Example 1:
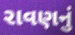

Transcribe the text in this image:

રાવણનું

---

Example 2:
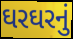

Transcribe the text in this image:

ઘરઘરનું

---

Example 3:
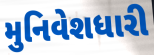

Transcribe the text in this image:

મુનિવેશધારી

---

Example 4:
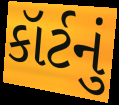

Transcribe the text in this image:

કૉર્ટનું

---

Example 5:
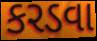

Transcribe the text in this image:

કરડવા